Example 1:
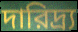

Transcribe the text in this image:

দারিদ্র্য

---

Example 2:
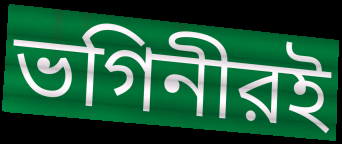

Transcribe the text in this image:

ভগিনীরই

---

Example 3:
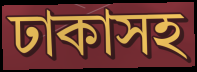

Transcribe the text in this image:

ঢাকাসহ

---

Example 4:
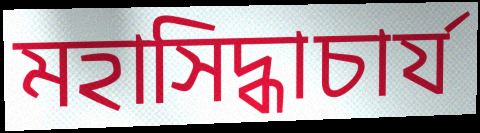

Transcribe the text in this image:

মহাসিদ্ধাচার্য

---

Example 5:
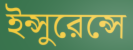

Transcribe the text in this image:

ইন্সুরেন্সে